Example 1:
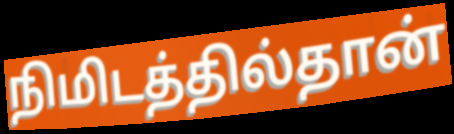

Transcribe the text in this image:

நிமிடத்தில்தான்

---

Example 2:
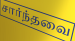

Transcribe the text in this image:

சார்ந்தவை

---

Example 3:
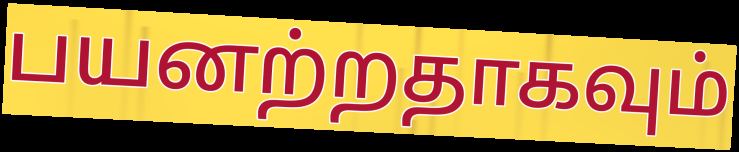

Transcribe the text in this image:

பயனற்றதாகவும்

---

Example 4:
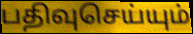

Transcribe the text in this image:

பதிவுசெய்யும்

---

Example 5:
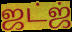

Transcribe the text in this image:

ஜட்ஜ்